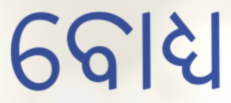
ବୋଧ୍ୟ